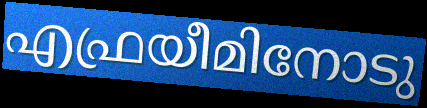
എഫ്രയീമിനോടു